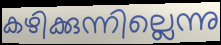
കഴിക്കുന്നില്ലെന്നു